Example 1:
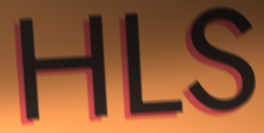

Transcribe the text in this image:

HLS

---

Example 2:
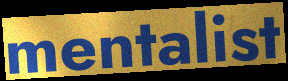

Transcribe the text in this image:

mentalist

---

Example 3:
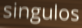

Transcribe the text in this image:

singulos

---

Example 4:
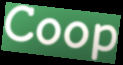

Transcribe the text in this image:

Coop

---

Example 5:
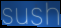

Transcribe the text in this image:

sush